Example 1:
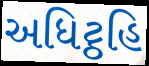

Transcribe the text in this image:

અધિટ્ઠહિ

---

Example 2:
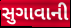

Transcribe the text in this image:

સુગાવાની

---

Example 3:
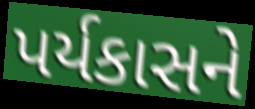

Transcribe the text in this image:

પર્યકાસને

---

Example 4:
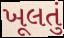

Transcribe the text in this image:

ખૂલતું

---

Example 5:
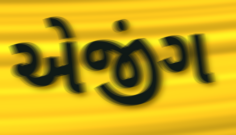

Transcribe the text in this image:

એજીંગ